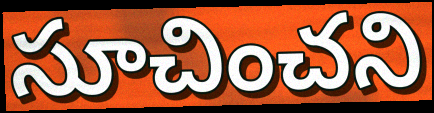
సూచించని